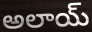
అలాయ్